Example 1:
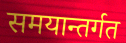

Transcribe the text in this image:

समयान्तर्गत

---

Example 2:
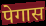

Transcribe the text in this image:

पेगास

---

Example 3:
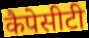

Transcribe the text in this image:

कैपेसीटी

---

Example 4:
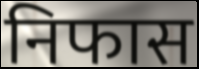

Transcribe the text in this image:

निफास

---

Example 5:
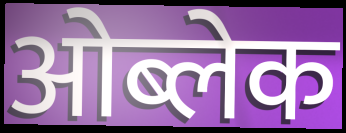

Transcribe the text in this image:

ओब्लेक